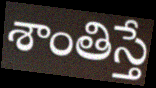
శాంతిస్తే